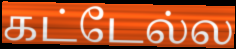
கட்டேல்ல